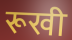
रूखी